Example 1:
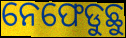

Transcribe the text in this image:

ନେଫେଡୁଛୁ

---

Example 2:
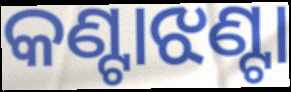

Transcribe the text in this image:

କଣ୍ଟାଝଣ୍ଟା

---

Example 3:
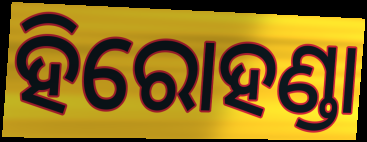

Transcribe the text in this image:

ହିରୋହଣ୍ଡା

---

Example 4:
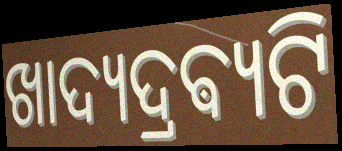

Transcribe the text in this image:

ଖାଦ୍ୟଦ୍ରଵ୍ୟଟି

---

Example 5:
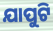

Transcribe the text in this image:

ଯାପୁଟି